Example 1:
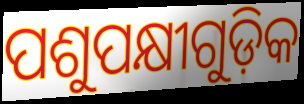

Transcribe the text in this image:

ପଶୁପକ୍ଷୀଗୁଡ଼ିକ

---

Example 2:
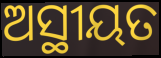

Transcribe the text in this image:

ଅସ୍ଥୀୟତ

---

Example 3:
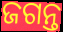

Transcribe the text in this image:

ଜଗନ୍ତ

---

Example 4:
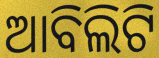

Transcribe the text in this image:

ଆବିଲିଟି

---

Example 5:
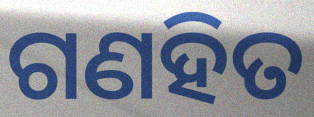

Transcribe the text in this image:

ଗଣହିତ